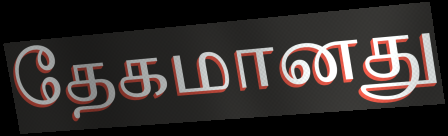
தேகமானது